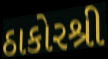
ઠાકોરશ્રી